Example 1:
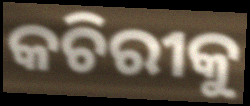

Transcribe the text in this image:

କଚିରୀକୁ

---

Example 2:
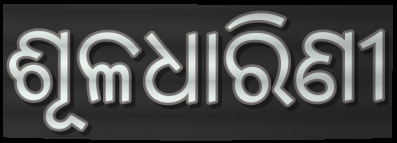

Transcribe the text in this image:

ଶୂଳଧାରିଣୀ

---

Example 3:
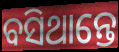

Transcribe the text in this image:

ବସିଥାନ୍ତେ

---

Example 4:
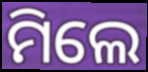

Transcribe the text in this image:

ମିଲେ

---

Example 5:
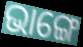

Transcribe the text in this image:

ଭାଙ୍ଗେ